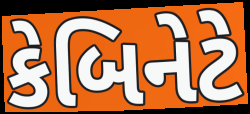
કેબિનેટે